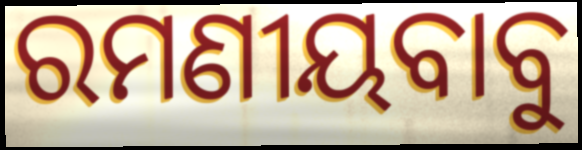
ରମଣୀୟବାବୁ